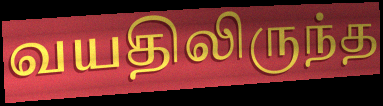
வயதிலிருந்த